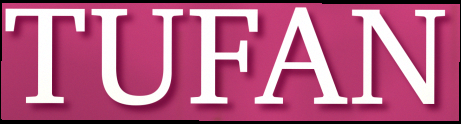
TUFAN